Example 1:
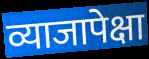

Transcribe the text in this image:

व्याजापेक्षा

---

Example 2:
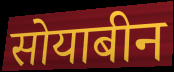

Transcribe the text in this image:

सोयाबीन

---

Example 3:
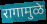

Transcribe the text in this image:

रागामुळे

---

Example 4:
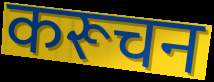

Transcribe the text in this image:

करूचन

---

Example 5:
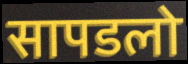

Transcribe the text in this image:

सापडलो